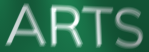
ARTS